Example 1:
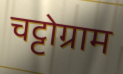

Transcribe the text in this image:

चट्टोग्राम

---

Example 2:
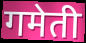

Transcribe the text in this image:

गमेती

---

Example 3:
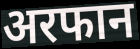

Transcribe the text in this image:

अरफान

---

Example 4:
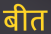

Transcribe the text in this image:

बीत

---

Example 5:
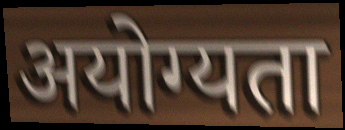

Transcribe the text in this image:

अयोग्यता